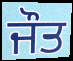
ਜੌਤ